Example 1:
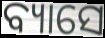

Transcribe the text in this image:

ବ୍ୟାସେ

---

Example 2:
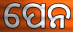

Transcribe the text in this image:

ପେନ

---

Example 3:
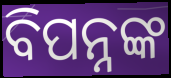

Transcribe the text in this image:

ବିପନ୍ନଙ୍କ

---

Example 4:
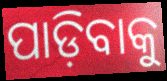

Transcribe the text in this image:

ପାଡ଼ିବାକୁ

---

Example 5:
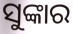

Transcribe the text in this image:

ସୁଙ୍କାର